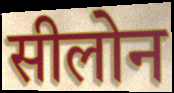
सीलोन